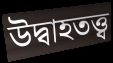
উদ্বাহতত্ত্ব